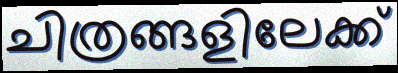
ചിത്രങ്ങളിലേക്ക്